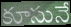
కూసునే